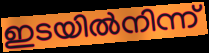
ഇടയിൽനിന്ന്